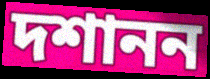
দশানন